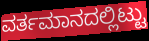
ವರ್ತಮಾನದಲ್ಲಿಟ್ಟು